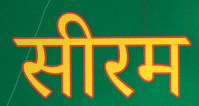
सीरम